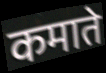
कमाते